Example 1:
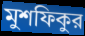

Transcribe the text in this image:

মুশফিকুর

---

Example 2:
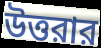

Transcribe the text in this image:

উত্তরার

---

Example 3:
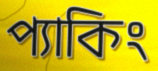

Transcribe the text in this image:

প্যাকিং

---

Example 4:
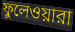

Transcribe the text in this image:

ফুলেওয়ারা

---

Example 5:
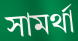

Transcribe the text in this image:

সামর্থা